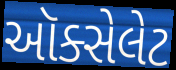
ઑક્સેલેટ